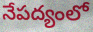
నేపద్యంలో